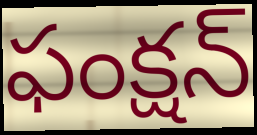
ఫంక్షన్